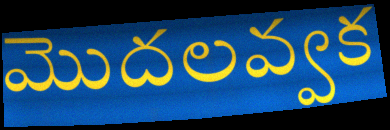
మొదలవ్వక